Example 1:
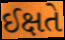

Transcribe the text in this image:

ઈક્ષતે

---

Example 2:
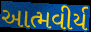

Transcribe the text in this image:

આત્મવીર્ય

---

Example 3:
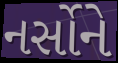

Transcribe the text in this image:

નર્સોને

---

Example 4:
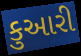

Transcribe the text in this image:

કુઆરી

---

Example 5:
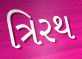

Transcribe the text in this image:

ત્રિરથ